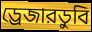
ড্রেজারডুবি